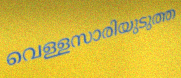
വെള്ളസാരിയുടുത്ത